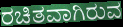
ರಚಿತವಾಗಿರುವ